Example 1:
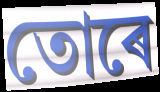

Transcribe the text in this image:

তোৰে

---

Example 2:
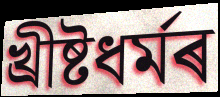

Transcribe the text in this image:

খ্ৰীষ্টধৰ্মৰ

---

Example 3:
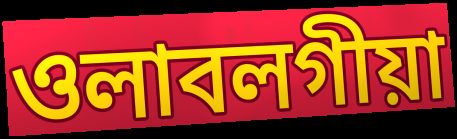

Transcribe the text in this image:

ওলাবলগীয়া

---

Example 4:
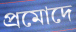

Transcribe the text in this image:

প্ৰমোদে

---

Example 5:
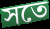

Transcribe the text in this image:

সতে